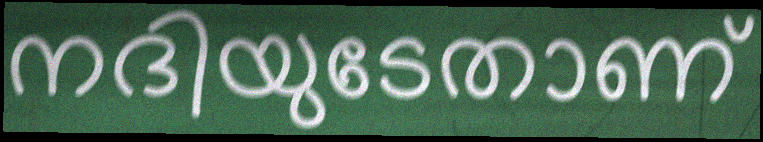
നദിയുടേതാണ്